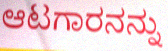
ಆಟಗಾರನನ್ನು